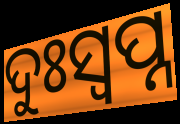
ଦୁଃସ୍ଵପ୍ନ